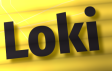
Loki